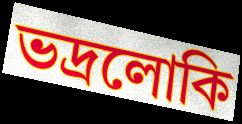
ভদ্রলোকি